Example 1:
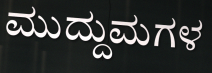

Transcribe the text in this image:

ಮುದ್ದುಮಗಳ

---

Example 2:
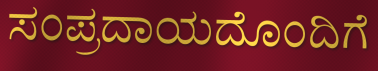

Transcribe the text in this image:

ಸಂಪ್ರದಾಯದೊಂದಿಗೆ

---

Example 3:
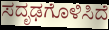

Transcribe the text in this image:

ಸದೃಢಗೊಳಿಸಿದೆ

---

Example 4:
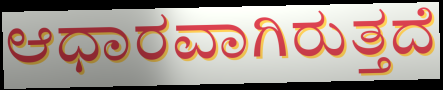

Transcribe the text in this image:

ಆಧಾರವಾಗಿರುತ್ತದೆ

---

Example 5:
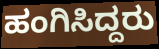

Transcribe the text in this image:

ಹಂಗಿಸಿದ್ದರು